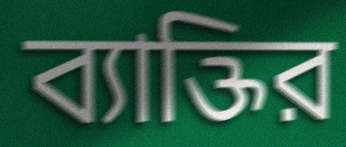
ব্যাক্তির